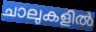
ചാലുകളിൽ